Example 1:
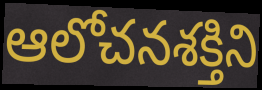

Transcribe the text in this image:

ఆలోచనశక్తిని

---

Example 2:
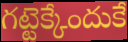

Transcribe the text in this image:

గట్టెక్కేందుకే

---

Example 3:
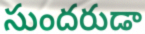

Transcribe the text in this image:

సుందరుడా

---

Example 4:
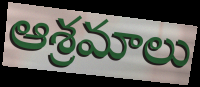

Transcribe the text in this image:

ఆశ్రమాలు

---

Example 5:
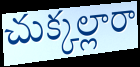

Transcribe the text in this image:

చుక్కల్లారా